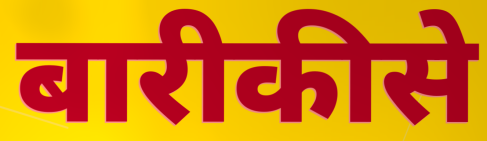
बारीकीसे